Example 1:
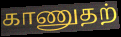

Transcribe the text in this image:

காணுதற்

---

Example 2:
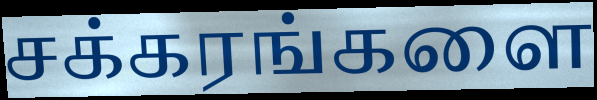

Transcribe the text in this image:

சக்கரங்களை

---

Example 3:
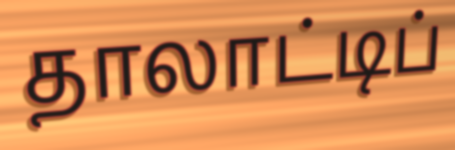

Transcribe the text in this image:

தாலாட்டிப்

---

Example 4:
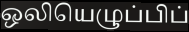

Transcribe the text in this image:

ஒலியெழுப்பிப்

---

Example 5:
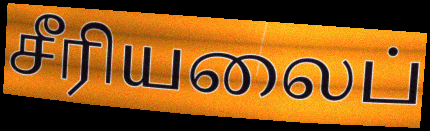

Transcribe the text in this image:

சீரியலைப்